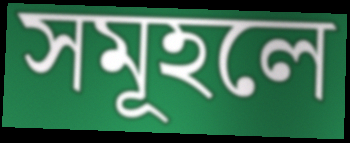
সমূহলে